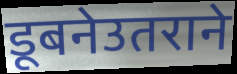
डूबनेउतराने